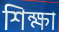
শিক্ষা